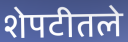
शेपटीतले